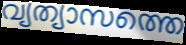
വ്യത്യാസത്തെ